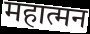
महात्मन